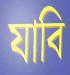
যাবি